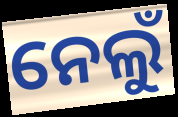
ନେଲୁଁ